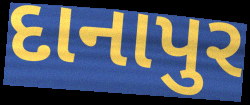
દાનાપુર